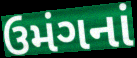
ઉમંગનાં